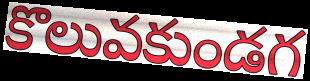
కొలువకుండగ